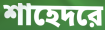
শাহেদরে